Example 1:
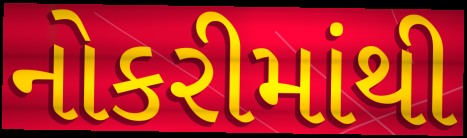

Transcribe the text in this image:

નોકરીમાંથી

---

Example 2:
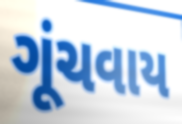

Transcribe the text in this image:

ગૂંચવાય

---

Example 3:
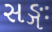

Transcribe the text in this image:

સઙ્ગઃ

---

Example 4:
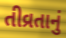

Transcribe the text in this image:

તીવ્રતાનું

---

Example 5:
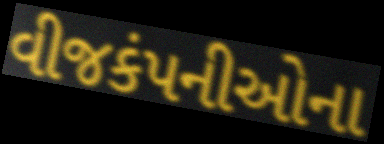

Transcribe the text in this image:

વીજકંપનીઓના